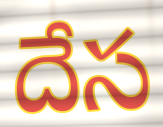
దేస